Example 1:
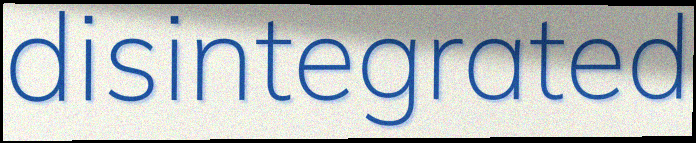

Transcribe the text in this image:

disintegrated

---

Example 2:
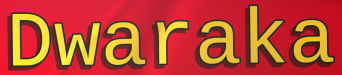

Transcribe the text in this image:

Dwaraka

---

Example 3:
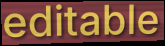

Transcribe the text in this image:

editable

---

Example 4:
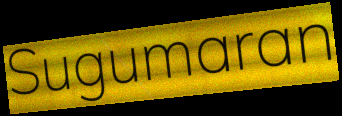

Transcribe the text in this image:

Sugumaran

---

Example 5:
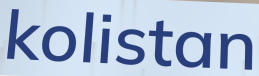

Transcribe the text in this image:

kolistan